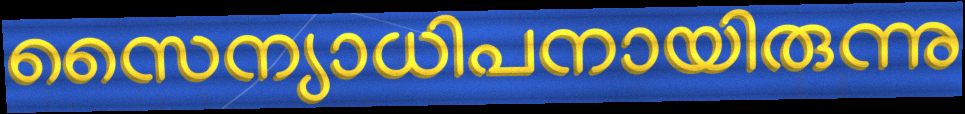
സൈന്യാധിപനായിരുന്നു